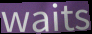
waits